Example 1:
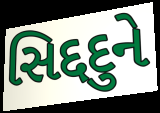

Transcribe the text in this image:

સિદ્દદુને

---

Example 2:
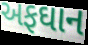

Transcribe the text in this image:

અફઘાન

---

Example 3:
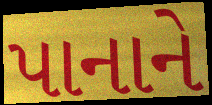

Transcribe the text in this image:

પાનાને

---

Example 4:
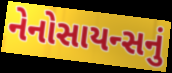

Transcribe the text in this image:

નેનોસાયન્સનું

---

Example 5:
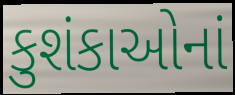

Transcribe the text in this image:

કુશંકાઓનાં